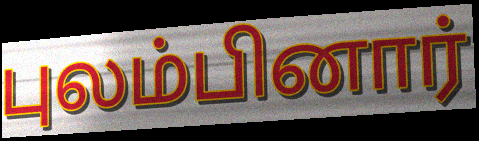
புலம்பினார்